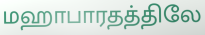
மஹாபாரதத்திலே